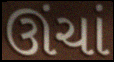
ઊંચાં